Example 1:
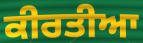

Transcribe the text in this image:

ਕੀਰਤੀਆ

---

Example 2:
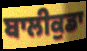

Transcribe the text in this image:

ਬਾਲੀਕੁਡਾ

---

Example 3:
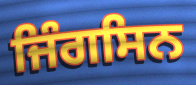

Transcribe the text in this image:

ਜਿੰਗਸਿਨ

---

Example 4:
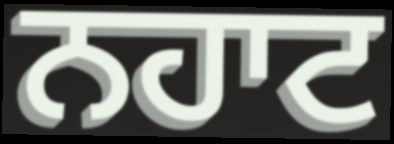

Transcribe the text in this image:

ਨਹਾਟ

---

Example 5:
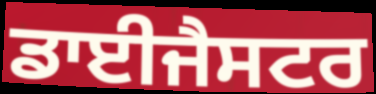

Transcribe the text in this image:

ਡਾਈਜੈਸਟਰ